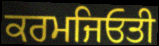
ਕਰਮਜਿਓਤੀ